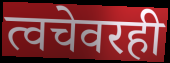
त्वचेवरही